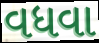
વધવા